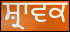
ਸ਼੍ਰਾਵਕ